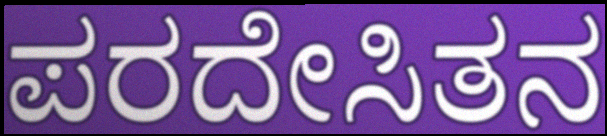
ಪರದೇಸಿತನ